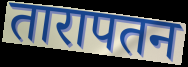
तारापतन